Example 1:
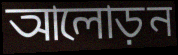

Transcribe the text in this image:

আলোড়ন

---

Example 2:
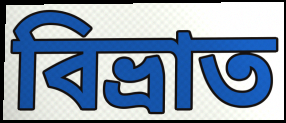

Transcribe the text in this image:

বিভ্ৰাত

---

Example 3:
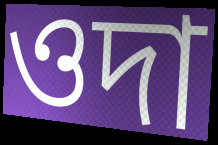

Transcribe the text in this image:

ওদা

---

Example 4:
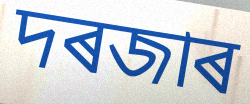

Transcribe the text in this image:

দৰজাৰ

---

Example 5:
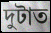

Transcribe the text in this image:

দুটাত